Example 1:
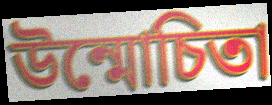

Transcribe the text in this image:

উন্মোচিতা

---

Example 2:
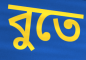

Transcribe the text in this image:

বুতে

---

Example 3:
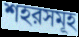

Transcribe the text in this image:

শহরসমূহ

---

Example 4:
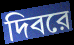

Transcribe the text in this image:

দিবরে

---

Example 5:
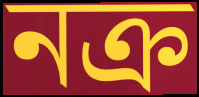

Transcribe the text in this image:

নক্র